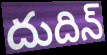
దుదిన్